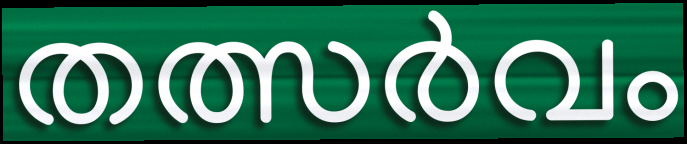
തത്സർവം